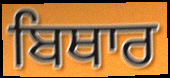
ਬਿਥਾਰ